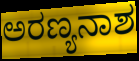
ಅರಣ್ಯನಾಶ